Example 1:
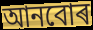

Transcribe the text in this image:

আনবোৰ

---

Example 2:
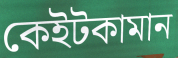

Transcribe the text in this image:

কেইটকামান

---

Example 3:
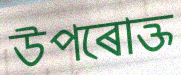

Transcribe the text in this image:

উপৰোক্ত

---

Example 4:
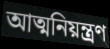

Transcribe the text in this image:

আত্মনিয়ন্ত্ৰণ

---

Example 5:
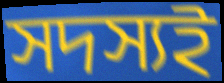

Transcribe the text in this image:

সদস্যই